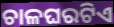
ଚାଳଘରଟିଏ